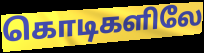
கொடிகளிலே